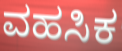
ವಹಸಿಕ